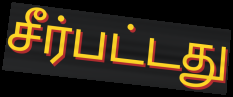
சீர்பட்டது